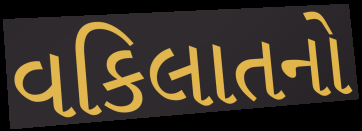
વકિલાતનો